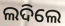
ଲଦିଲେ